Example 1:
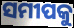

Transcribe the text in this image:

ସମୀପକୁ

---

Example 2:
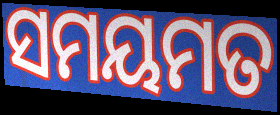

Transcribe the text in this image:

ସମୟମତ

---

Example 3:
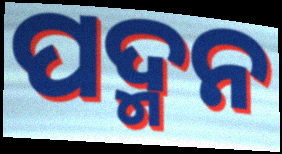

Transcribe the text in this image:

ପଦ୍ମନ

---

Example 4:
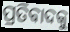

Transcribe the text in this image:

ପ୍ରତିବାଦକୁ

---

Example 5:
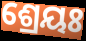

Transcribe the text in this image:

ଶ୍ରେୟଃ